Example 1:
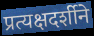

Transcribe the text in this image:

प्रत्यक्षदर्शीने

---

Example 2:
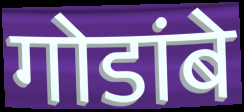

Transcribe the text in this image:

गोडांबे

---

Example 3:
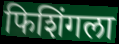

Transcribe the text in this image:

फिशिंगला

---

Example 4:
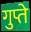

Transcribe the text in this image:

गुप्ते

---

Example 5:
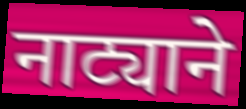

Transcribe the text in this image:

नाट्याने